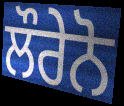
ਲੌਰੇਨੋ